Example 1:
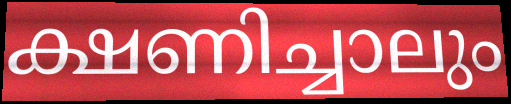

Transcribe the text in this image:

ക്ഷണിച്ചാലും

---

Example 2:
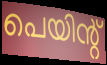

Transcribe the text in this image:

പെയിന്റ്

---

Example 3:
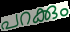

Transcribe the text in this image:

പറക്കും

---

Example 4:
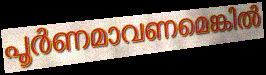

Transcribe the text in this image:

പൂർണമാവണമെങ്കിൽ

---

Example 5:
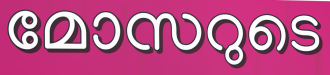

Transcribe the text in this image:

മോസറുടെ